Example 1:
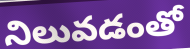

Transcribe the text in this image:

నిలువడంతో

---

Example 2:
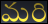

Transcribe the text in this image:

మరి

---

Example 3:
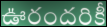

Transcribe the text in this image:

ఊరందరికీ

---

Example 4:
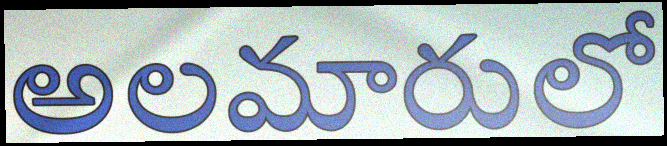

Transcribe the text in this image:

అలమారులో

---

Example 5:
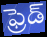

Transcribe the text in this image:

ఫ్రెడ్